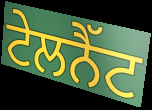
ਟੇਲਨੈੱਟ